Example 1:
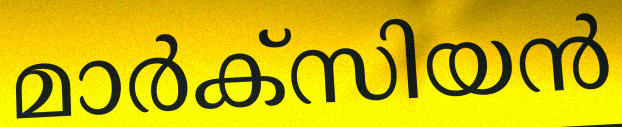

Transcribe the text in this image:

മാർക്സിയൻ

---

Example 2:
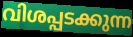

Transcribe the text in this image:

വിശപ്പടക്കുന്ന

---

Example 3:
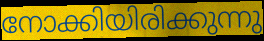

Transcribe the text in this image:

നോക്കിയിരിക്കുന്നു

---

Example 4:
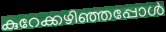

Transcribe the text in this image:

കുറേക്കഴിഞ്ഞപ്പോൾ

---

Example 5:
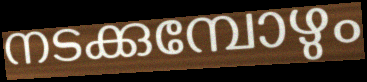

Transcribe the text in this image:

നടക്കുമ്പോഴും